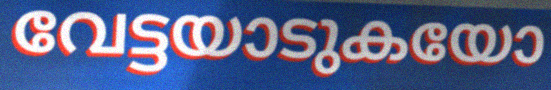
വേട്ടയാടുകയോ